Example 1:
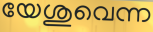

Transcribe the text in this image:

യേശുവെന്ന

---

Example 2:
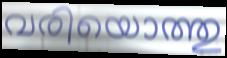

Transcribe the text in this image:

വരിയൊത്തു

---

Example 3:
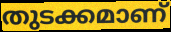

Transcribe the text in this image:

തുടക്കമാണ്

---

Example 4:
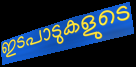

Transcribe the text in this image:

ഇടപാടുകളുടെ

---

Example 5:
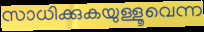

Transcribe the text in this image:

സാധിക്കുകയുള്ളൂവെന്ന